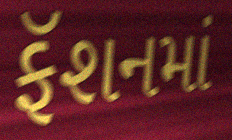
ફૅશનમાં